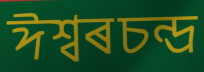
ঈশ্বৰচন্দ্ৰ